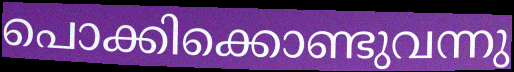
പൊക്കിക്കൊണ്ടുവന്നു